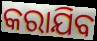
କରାଯିବ